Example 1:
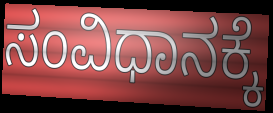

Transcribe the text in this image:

ಸಂವಿಧಾನಕ್ಕೆ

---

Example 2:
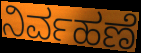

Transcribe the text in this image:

ನಿರ್ವಹಣೆ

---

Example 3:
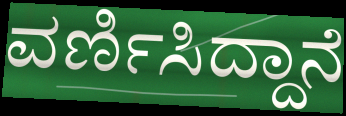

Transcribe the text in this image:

ವರ್ಣಿಸಿದ್ದಾನೆ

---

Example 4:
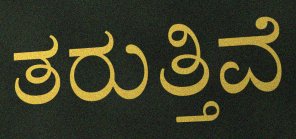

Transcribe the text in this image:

ತರುತ್ತಿವೆ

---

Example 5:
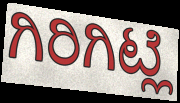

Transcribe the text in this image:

ಗಿರಿಗಿಟ್ಲೆ